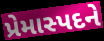
પ્રેમાસ્પદને